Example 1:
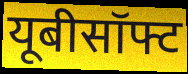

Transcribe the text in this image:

यूबीसॉफ्ट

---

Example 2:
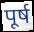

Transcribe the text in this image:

पूर्ष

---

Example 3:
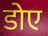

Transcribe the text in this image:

डोए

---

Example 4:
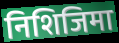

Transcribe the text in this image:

निशिजिमा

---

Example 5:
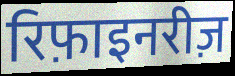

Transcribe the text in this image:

रिफ़ाइनरीज़